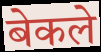
बेकले